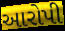
આરોપી